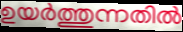
ഉയർത്തുന്നതിൽ